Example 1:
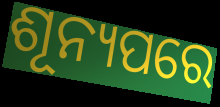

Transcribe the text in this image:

ଶୂନ୍ୟପରେ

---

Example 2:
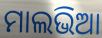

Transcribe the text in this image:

ମାଲଭିଆ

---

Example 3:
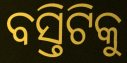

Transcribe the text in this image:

ବସ୍ତିଟିକୁ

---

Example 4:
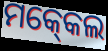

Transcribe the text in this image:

ମକ୍‍କେଲ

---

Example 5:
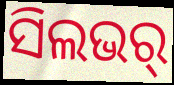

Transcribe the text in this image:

ସିଲଭର୍